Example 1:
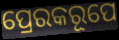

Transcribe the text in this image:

ପ୍ରେରକରୂପେ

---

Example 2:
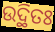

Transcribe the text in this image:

ଉଦ୍ଥିତଃ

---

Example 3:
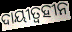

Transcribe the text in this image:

ଦାୟୀତ୍ୱହୀନ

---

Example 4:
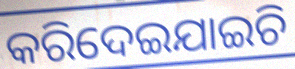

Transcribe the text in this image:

କରିଦେଇଯାଇଚି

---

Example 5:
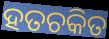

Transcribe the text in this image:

ହତଚକିତ